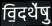
वि॒दथे॑षु